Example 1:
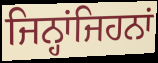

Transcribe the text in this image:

ਜਿਨ੍ਹਾਂਜਿਹਨਾਂ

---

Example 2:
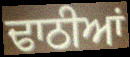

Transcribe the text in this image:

ਢਾਠੀਆਂ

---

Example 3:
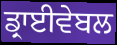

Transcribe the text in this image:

ਡ੍ਰਾਈਵੇਬਲ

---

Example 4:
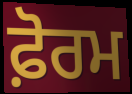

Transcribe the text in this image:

ਫ਼ੋਰਮ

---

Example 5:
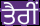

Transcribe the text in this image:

ਤੈਰੀਂ